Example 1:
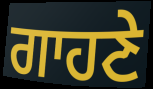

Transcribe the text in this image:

ਗਾਹਣੇ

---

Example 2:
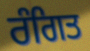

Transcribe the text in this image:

ਰੰਗਿਤ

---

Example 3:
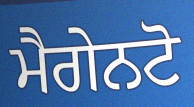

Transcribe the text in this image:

ਮੈਗੇਨਟੋ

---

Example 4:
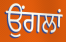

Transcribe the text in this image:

ਉੰਗਲਾਂ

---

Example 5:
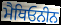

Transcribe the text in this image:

ਮੈਥਿਓਨੀਨ